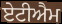
ਏਟੀਐਮ